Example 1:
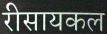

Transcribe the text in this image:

रीसायकल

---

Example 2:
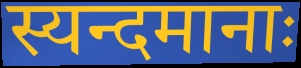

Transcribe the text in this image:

स्यन्दमानाः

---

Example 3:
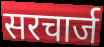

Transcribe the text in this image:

सरचार्ज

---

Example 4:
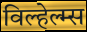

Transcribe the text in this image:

विल्हेल्म्स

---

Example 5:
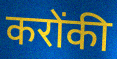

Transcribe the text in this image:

करोंकी